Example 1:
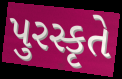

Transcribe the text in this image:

પુરસ્કૃતે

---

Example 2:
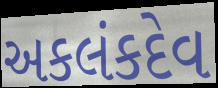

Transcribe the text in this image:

અકલંકદેવ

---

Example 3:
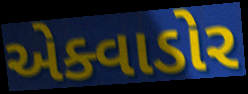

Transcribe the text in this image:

એક્વાડોર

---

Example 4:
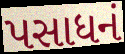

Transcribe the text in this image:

પસાધનં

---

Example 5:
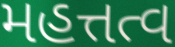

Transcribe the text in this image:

મહત્તત્વ